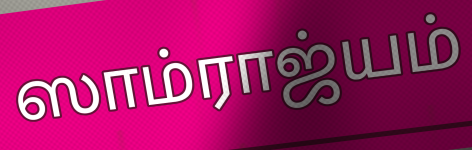
ஸாம்ராஜ்யம்